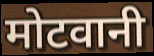
मोटवानी